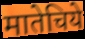
मातेचिये